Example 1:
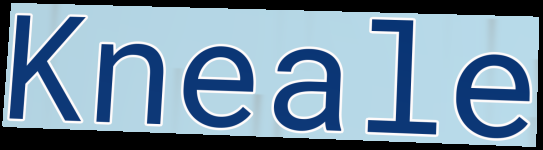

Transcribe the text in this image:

Kneale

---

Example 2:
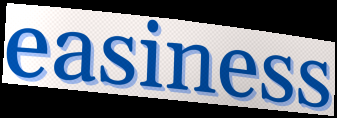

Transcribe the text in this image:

easiness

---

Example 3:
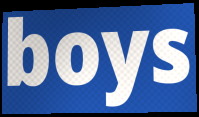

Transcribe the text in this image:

boys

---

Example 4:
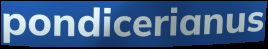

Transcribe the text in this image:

pondicerianus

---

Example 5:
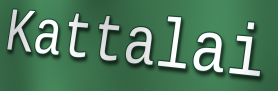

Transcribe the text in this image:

Kattalai